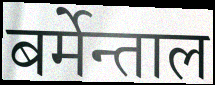
बर्मेन्ताल